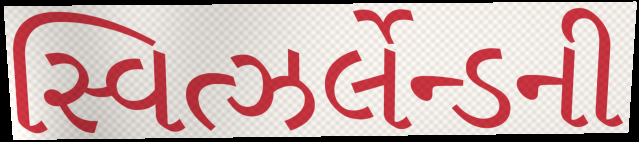
સ્વિત્ઝર્લેન્ડની